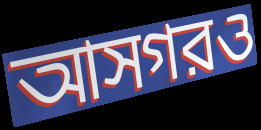
আসগরও